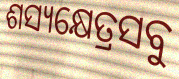
ଶସ୍ୟକ୍ଷେତ୍ରସବୁ